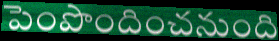
పెంపొందించనుంది